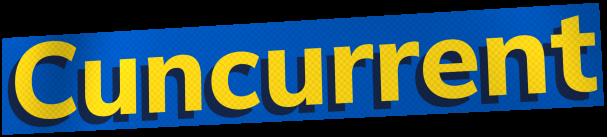
Cuncurrent